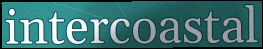
intercoastal